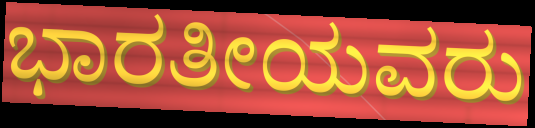
ಭಾರತೀಯವರು